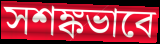
সশঙ্কভাবে